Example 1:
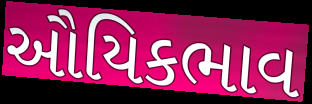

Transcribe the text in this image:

ઔયિકભાવ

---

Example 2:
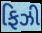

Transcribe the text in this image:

ફિઝી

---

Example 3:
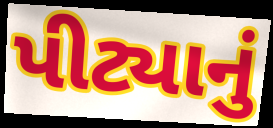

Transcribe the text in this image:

પીટ્યાનું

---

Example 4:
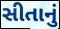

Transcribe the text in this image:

સીતાનું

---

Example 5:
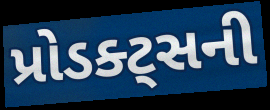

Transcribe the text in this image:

પ્રોડક્ટ્સની